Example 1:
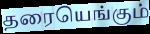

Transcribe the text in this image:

தரையெங்கும்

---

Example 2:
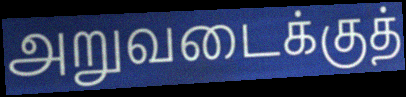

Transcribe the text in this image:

அறுவடைக்குத்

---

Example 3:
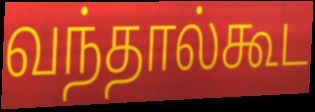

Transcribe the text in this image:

வந்தால்கூட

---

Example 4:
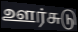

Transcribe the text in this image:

ஊர்சுடு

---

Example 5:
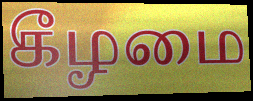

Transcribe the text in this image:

கீழமை